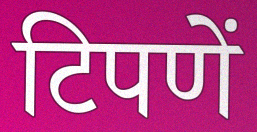
टिपणें